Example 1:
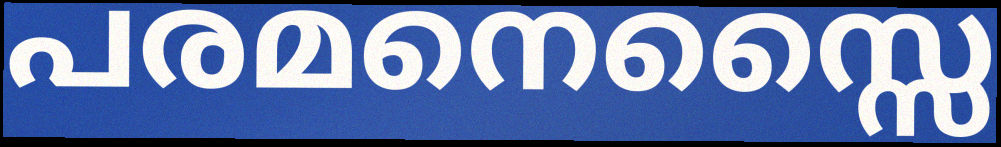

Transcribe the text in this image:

പരമനെസ്സൈ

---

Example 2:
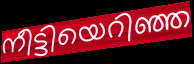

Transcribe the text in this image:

നീട്ടിയെറിഞ്ഞ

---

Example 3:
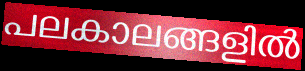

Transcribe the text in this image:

പലകാലങ്ങളിൽ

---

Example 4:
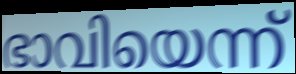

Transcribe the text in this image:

ഭാവിയെന്ന്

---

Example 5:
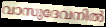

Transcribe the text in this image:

വാസുദേവനിൽ